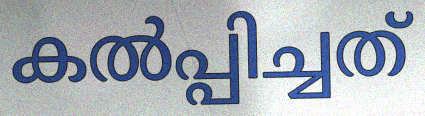
കൽപ്പിച്ചത്